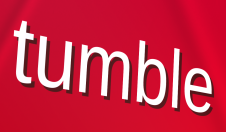
tumble